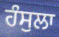
ਹੰਸੁਲਾ